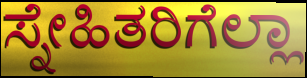
ಸ್ನೇಹಿತರಿಗೆಲ್ಲಾ